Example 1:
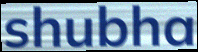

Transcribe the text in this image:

shubha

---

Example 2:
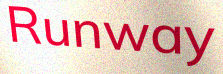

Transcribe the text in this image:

Runway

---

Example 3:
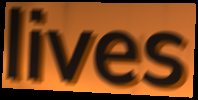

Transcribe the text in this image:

lives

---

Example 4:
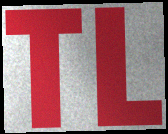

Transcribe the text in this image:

TL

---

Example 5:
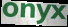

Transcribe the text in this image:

onyx